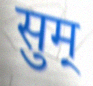
सुम्